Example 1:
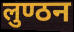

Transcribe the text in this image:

लुण्ठन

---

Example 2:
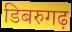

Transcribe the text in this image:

डिबरुगढ़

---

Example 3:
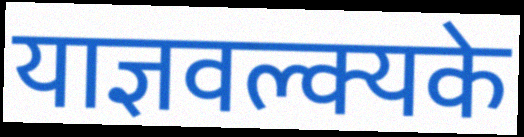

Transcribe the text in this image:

याज्ञवल्क्यके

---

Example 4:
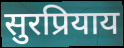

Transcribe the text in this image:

सुरप्रियाय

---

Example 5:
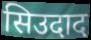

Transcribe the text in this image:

सिउदाद